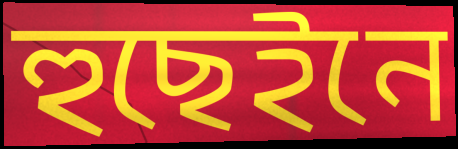
হুছেইনে